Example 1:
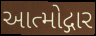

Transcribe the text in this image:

આત્મોદ્ગાર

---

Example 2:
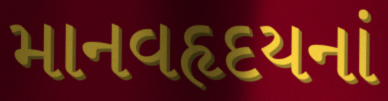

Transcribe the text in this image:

માનવહૃદયનાં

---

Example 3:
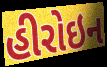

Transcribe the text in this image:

હીરોઇન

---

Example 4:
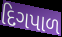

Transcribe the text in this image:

દિગપાળ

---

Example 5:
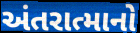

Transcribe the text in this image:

અંતરાત્માનો